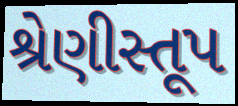
શ્રેણીસ્તૂપ